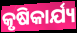
କୃଷିକାର୍ଯ୍ୟ